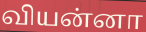
வியன்னா